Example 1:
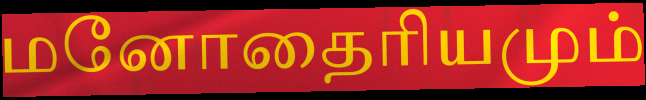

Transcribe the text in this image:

மனோதைரியமும்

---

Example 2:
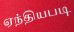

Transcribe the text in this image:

ஏந்தியபடி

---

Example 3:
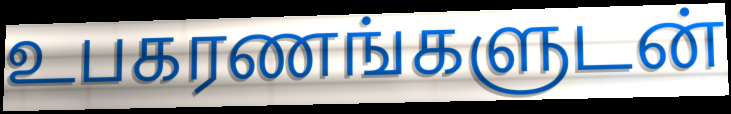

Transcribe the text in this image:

உபகரணங்களுடன்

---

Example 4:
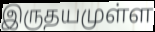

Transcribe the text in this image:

இருதயமுள்ள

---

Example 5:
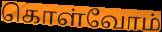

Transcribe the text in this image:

கொள்வோம்